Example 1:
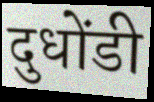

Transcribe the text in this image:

दुधोंडी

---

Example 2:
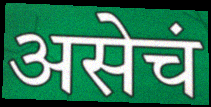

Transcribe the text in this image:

असेचं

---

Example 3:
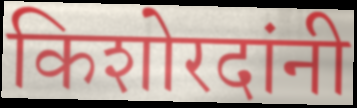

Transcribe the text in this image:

किशोरदांनी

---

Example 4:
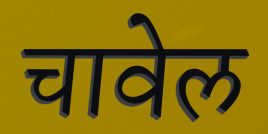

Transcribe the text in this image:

चावेल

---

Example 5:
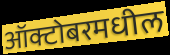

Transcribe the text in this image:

ऑक्टोबरमधील